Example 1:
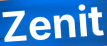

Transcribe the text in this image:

Zenit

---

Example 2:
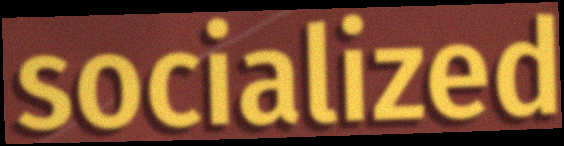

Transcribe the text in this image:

socialized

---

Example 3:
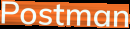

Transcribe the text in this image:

Postman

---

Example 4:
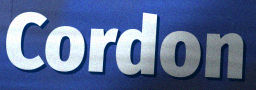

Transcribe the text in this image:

Cordon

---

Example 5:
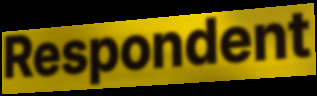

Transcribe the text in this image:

Respondent